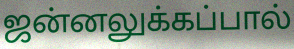
ஜன்னலுக்கப்பால்